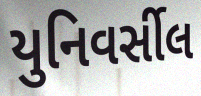
યુનિવર્સીલ